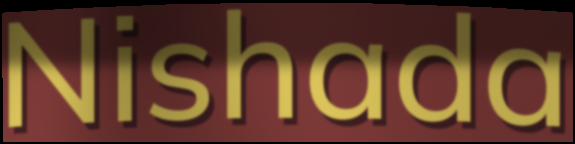
Nishada